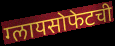
ग्लायसोफेटची